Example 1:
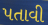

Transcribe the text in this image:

પતાવી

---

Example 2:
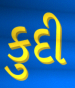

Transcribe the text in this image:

કુદી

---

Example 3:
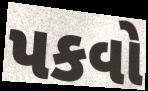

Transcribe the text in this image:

પકવો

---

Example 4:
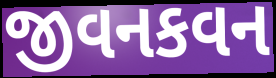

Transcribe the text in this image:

જીવનકવન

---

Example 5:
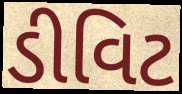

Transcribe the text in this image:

ડીવિટ